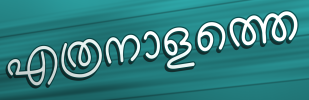
എത്രനാളത്തെ